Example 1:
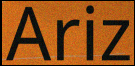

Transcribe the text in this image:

Ariz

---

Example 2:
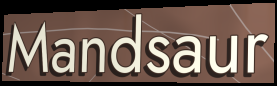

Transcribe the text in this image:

Mandsaur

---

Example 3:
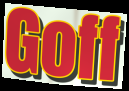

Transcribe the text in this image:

Goff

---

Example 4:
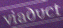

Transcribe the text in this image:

viaduct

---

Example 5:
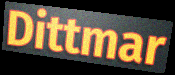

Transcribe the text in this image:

Dittmar